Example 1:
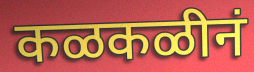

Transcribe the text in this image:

कळकळीनं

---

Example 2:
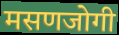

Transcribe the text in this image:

मसणजोगी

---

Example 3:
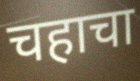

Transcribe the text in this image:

चहाचा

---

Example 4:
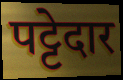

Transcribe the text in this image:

पट्टेदार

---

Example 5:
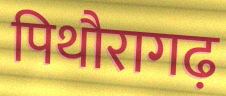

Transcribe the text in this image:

पिथौरागढ़